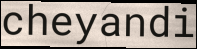
cheyandi